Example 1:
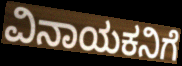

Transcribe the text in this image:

ವಿನಾಯಕನಿಗೆ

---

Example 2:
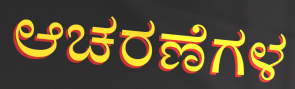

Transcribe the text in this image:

ಆಚರಣೆಗಳ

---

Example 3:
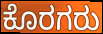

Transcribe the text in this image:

ಕೊರಗರು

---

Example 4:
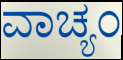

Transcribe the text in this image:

ವಾಚ್ಯಂ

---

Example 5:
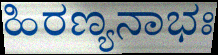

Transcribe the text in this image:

ಹಿರಣ್ಯನಾಭಃ